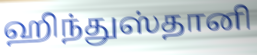
ஹிந்துஸ்தானி